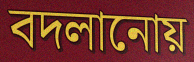
বদলানোয়